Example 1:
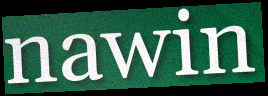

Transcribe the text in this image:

nawin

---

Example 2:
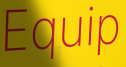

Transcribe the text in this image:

Equip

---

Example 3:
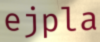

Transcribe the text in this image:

ejpla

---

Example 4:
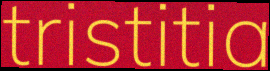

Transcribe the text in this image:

tristitia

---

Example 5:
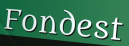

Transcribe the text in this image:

Fondest